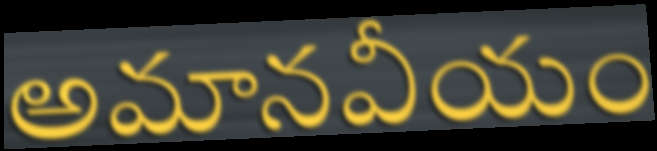
అమానవీయం